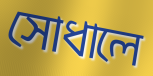
সোধালে